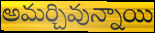
అమర్చివున్నాయి